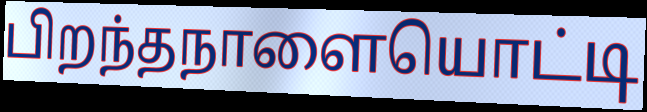
பிறந்தநாளையொட்டி